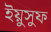
ইয়ুসুফ